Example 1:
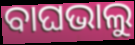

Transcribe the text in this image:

ବାଘଭାଲୁ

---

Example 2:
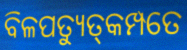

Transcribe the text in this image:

ବିଳପତ୍ୟୁତ୍‌କମ୍ପତେ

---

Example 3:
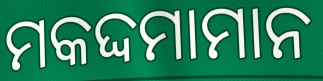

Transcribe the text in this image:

ମକଦ୍ଦମାମାନ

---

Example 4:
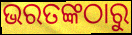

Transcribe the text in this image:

ଭରତଙ୍କଠାରୁ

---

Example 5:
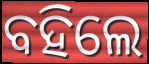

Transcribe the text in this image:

ବହିଲେ